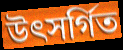
উৎসর্গিত